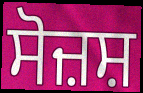
ਸੋਜ਼ਸ਼